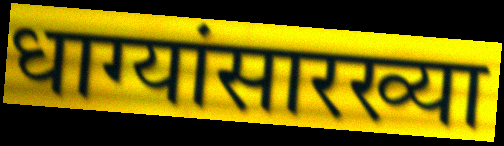
धाग्यांसारख्या